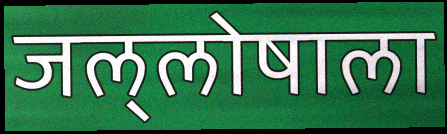
जल्लोषाला